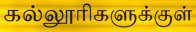
கல்லூரிகளுக்குள்